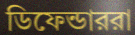
ডিফেন্ডাররা